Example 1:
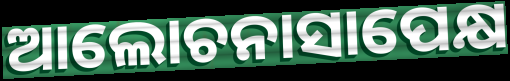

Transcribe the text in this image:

ଆଲୋଚନାସାପେକ୍ଷ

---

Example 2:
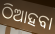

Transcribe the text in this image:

ଠିଆହବା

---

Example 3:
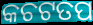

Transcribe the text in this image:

କଚଟତପ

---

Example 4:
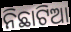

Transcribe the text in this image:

ନିଛାଟିଆ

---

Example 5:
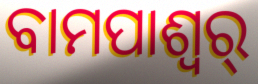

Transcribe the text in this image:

ବାମପାଶ୍ୱର୍